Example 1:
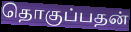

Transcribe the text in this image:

தொகுப்பதன்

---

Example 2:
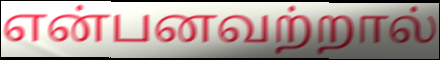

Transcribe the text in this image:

என்பனவற்றால்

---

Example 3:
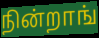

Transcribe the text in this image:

நின்றாங்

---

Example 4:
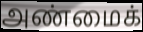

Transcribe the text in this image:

அண்மைக்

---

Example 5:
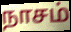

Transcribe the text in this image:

நாசம்